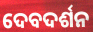
ଦେବଦର୍ଶନ